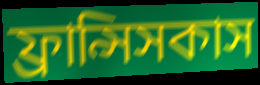
ফ্রান্সিসকাস